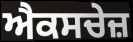
ਐਕਸਚੇਜ਼